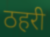
ठहरी